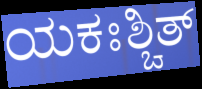
ಯಕಃಶ್ಚಿತ್